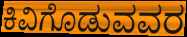
ಕಿವಿಗೊಡುವವರ